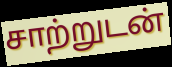
சாற்றுடன்